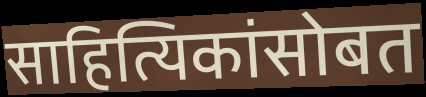
साहित्यिकांसोबत